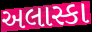
અલાસ્કા